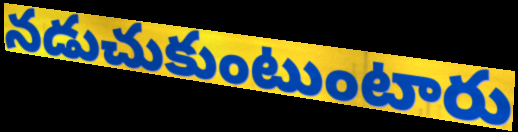
నడుచుకుంటుంటారు